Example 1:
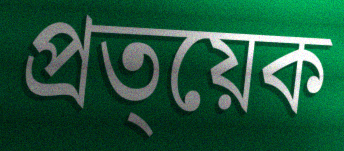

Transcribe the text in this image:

প্ৰত্য়েক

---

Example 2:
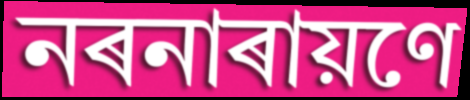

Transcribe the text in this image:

নৰনাৰায়ণে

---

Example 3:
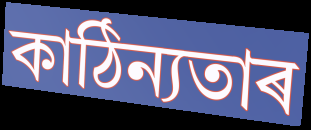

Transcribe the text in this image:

কাঠিন্যতাৰ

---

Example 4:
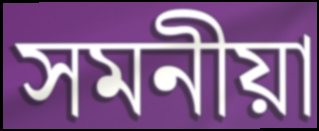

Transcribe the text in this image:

সমনীয়া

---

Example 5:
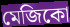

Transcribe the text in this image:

মেজিকো